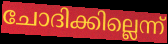
ചോദിക്കില്ലെന്ന്